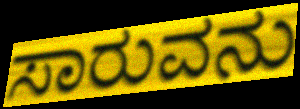
ಸಾರುವನು